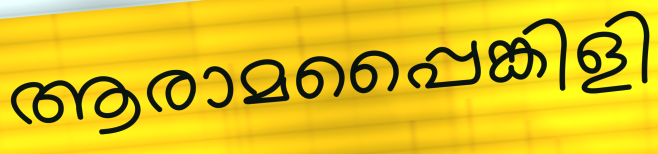
ആരാമപ്പൈങ്കിളി